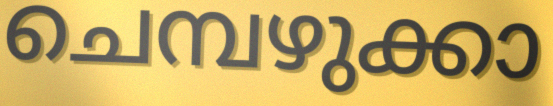
ചെമ്പഴുക്കാ